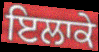
ਇਲਾਕੇ